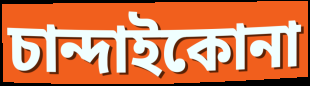
চান্দাইকোনা